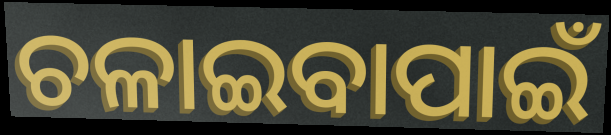
ଚଳାଇବାପାଇଁ